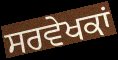
ਸਰਵੇਖਕਾਂ